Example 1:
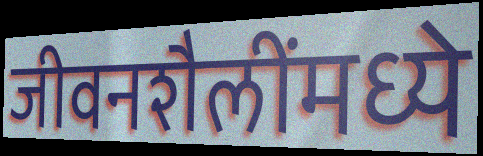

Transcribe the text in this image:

जीवनशैलींमध्ये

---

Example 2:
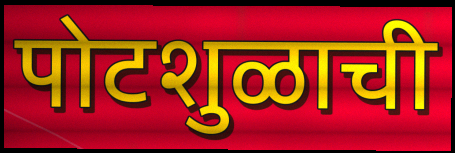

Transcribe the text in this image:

पोटशुळाची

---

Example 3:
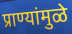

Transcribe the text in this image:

प्राण्यांमुळे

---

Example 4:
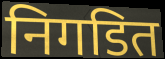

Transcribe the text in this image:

निगडित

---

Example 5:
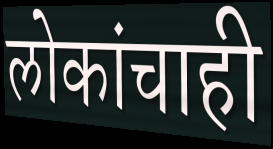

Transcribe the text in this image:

लोकांचाही